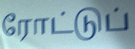
ரோட்டுப்